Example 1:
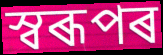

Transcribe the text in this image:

স্বৰূপৰ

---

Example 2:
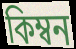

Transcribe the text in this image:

কিম্বন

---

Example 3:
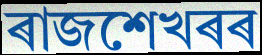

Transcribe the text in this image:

ৰাজশেখৰৰ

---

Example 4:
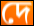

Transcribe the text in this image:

দে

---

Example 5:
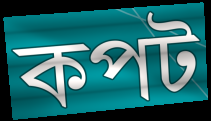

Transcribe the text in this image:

কপট